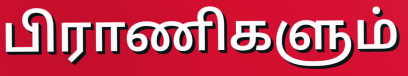
பிராணிகளும்